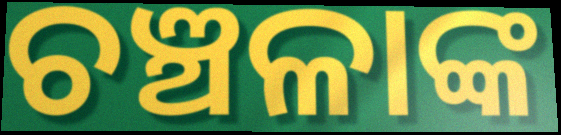
ଚଞ୍ଚଳାଙ୍କ